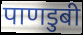
पाणडुबी